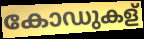
കോഡുകള്